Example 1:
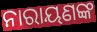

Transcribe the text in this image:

ନାରାୟଣଙ୍କ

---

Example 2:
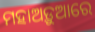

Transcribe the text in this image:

ମହାଅଡ଼ୁଆରେ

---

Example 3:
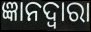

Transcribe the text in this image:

ଜ୍ଞାନଦ୍ଵାରା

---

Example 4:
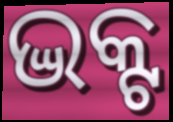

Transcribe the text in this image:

ଦ୍ଭକ୍ଟ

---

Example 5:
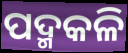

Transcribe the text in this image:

ପଦ୍ମକଳି